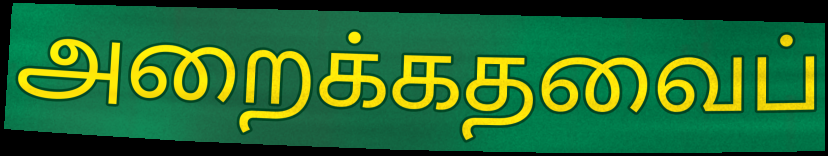
அறைக்கதவைப்